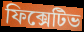
ফিক্সেটিভ